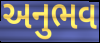
અનુભવ